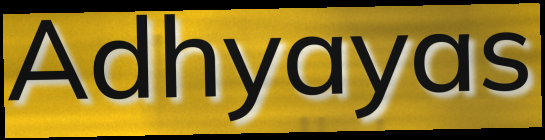
Adhyayas